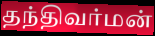
தந்திவர்மன்